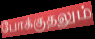
போக்குதலும்